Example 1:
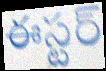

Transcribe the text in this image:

ఈస్టర్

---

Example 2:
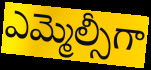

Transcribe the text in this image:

ఎమ్మెల్సీగా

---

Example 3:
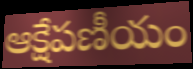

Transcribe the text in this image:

ఆక్షేపణీయం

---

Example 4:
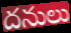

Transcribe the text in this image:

దనులు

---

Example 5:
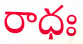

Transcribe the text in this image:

రాధః